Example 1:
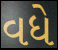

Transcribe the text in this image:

વધે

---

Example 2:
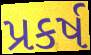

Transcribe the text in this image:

પ્રકર્ષ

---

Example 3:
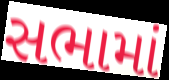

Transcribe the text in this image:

સભામાં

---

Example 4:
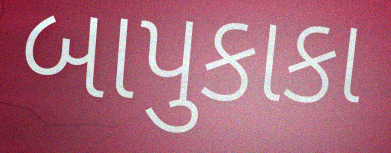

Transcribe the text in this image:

બાપુકાકા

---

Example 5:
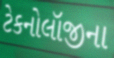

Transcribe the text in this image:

ટેકનોલૉજીના